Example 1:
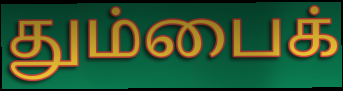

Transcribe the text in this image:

தும்பைக்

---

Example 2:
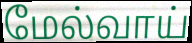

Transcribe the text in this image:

மேல்வாய்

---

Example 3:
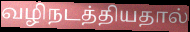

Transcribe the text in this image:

வழிநடத்தியதால்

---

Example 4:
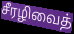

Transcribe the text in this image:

சீரழிவைத்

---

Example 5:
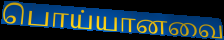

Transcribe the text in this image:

பொய்யானவை